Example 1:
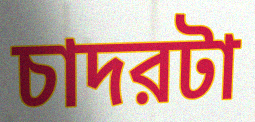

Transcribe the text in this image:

চাদরটা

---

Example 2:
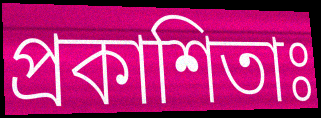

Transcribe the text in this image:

প্রকাশিতাঃ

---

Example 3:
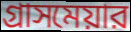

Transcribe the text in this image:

গ্রাসমেয়ার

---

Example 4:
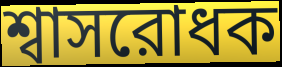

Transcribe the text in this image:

শ্বাসরোধক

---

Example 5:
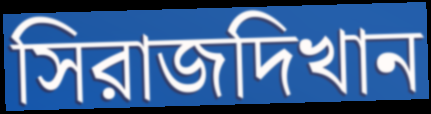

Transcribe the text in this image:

সিরাজদিখান